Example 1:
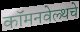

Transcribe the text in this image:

कॉमनवेल्थचे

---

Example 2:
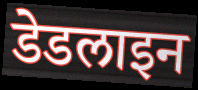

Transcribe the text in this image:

डेडलाइन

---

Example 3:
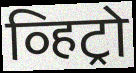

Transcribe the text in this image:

व्हिट्रो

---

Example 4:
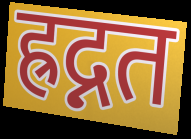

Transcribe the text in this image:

ह्रद्नत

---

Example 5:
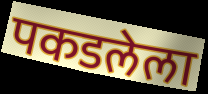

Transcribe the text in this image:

पकडलेला